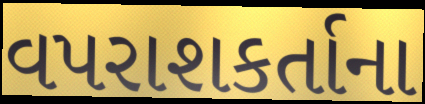
વપરાશકર્તાના